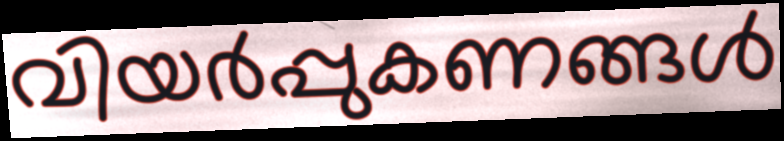
വിയർപ്പുകണങ്ങൾ